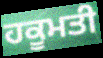
ਹਕੂਮਤੀ